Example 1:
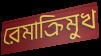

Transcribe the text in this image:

রেমাক্রিমুখ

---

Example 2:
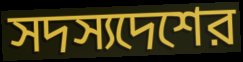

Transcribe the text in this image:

সদস্যদেশের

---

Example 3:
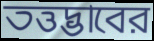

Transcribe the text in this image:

তত্তদ্ভাবের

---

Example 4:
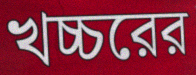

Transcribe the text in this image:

খচ্চরের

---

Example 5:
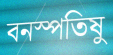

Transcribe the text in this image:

বনস্পতিষু